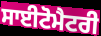
ਸਾਈਟੋਮੈਟਰੀ